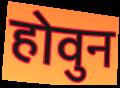
होवुन